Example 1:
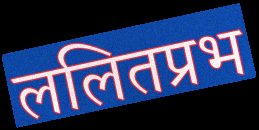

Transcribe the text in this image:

ललितप्रभ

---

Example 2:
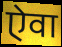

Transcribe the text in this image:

ऐवा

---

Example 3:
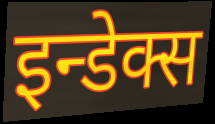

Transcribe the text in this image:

इन्डेक्स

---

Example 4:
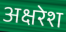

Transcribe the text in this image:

अक्षरेश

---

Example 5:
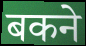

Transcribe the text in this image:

बकने